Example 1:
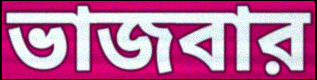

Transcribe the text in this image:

ভাজবার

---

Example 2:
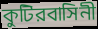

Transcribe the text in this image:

কুটিরবাসিনী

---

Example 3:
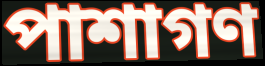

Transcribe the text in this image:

পাশাগণ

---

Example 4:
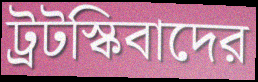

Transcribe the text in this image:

ট্রটস্কিবাদের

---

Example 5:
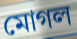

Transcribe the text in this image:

মোগল